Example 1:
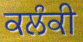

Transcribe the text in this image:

ਕਲੰਕੀ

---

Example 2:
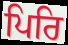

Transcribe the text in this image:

ਪਿਰਿ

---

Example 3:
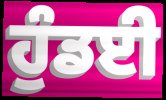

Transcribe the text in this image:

ਹੁੰਡਈ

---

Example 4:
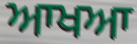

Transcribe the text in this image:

ਆਖਆ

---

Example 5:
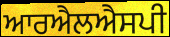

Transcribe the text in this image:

ਆਰਐਲਐਸਪੀ